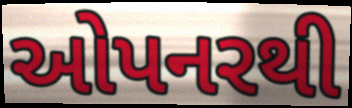
ઓપનરથી